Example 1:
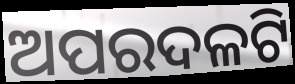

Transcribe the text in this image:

ଅପରଦଳଟି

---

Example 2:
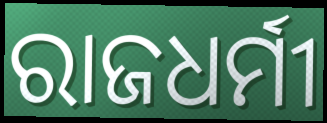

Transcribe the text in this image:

ରାଜଧର୍ମୀ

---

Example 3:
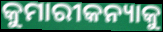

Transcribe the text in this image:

କୁମାରୀକନ୍ୟାକୁ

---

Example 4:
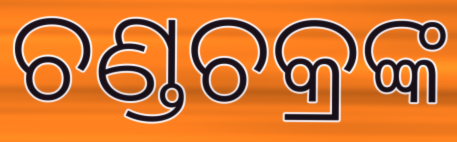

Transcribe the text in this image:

ଚଣ୍ଡଚକ୍ରଙ୍କ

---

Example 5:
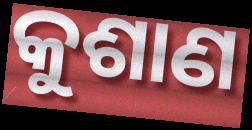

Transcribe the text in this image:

କୁଶାଣ